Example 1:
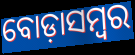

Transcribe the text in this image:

ବୋଡ଼ାସମ୍ବର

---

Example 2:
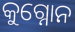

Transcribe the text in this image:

କୁଗ୍ନୋନ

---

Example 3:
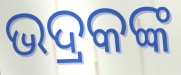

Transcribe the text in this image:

ଭଦ୍ରକଙ୍କ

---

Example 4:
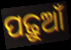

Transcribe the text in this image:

ପଢ଼ୁଆଁ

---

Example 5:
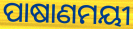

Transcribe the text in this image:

ପାଷାଣମୟୀ